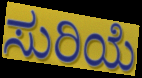
ಸುರಿಯೆ